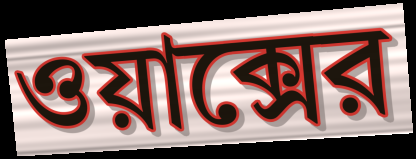
ওয়াক্সের